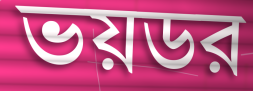
ভয়ডর